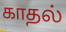
காதல்